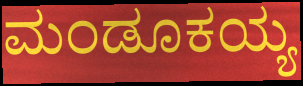
ಮಂಡೂಕಯ್ಯ